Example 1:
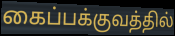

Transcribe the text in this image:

கைப்பக்குவத்தில்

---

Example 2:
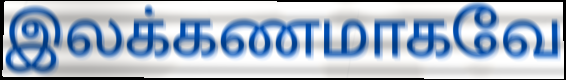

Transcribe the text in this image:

இலக்கணமாகவே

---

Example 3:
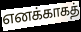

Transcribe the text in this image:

எனக்காகத்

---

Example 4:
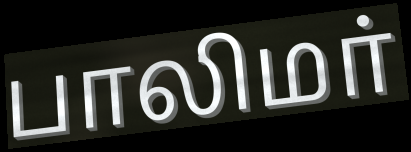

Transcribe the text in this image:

பாலிமர்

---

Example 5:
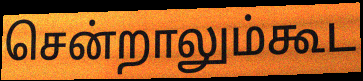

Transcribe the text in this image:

சென்றாலும்கூட